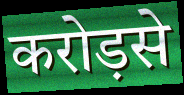
करोड़से